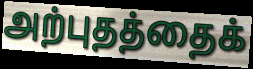
அற்புதத்தைக்